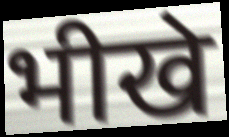
भीखे